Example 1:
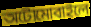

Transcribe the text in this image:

অটোমোবাইলে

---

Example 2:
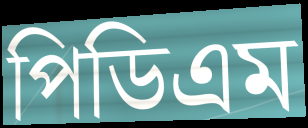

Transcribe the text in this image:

পিডিএম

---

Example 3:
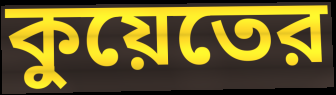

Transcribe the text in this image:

কুয়েতের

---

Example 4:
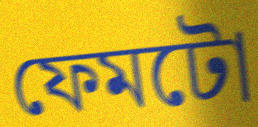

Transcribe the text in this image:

ফেমটো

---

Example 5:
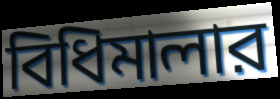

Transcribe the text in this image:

বিধিমালার